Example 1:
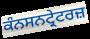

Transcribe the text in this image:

ਕੰਨਸਨਟ੍ਰੇਟਰਜ਼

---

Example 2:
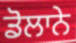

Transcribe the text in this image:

ਡੋਲਾਨੇ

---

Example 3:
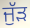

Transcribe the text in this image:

ਜੁੱੜ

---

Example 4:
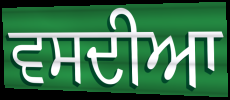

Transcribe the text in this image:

ਵਸਦੀਆ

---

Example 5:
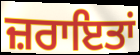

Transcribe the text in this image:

ਜ਼ਰਾਇਤਾਂ